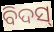
ବିଦସ୍